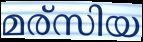
മര്സിയ